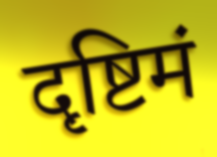
दृष्टिमं